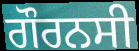
ਗੌਰਨਸੀ